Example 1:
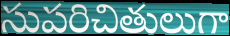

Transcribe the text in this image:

సుపరిచితులుగా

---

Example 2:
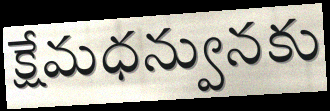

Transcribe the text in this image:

క్షేమధన్వునకు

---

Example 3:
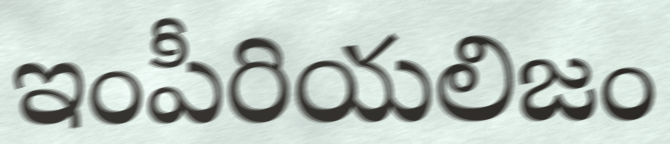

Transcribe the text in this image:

ఇంపీరియలిజం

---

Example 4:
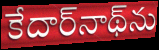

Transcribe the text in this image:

కేదార్‌నాథ్‌ను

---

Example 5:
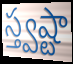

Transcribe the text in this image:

స్త్వష్టా